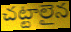
చట్టాలైన